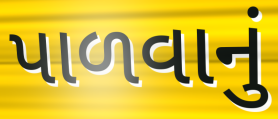
પાળવાનું